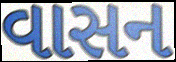
વાસન